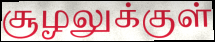
சூழலுக்குள்